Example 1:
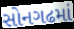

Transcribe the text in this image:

સોનગઢમાં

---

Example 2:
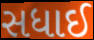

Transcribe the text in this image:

સધાઈ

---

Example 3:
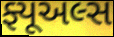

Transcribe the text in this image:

ફ્યૂઅલ્સ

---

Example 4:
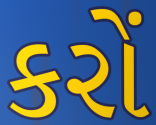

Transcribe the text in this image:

કરોં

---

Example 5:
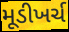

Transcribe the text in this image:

મૂડીખર્ચ